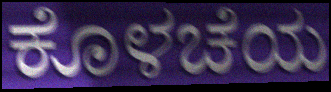
ಕೊಳಚೆಯ